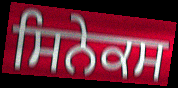
ਸਿਨੇਕਸ